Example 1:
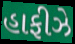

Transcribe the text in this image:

હાફીઝે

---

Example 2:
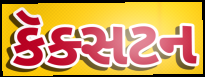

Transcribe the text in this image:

કૅક્સટન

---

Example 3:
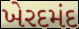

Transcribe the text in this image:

ખેરદમંદ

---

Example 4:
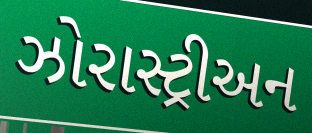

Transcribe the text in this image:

ઝોરાસ્ટ્રીઅન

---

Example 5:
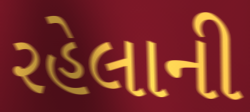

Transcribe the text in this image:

રહેલાની